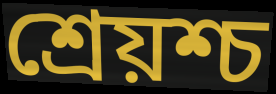
শ্রেয়শ্চ